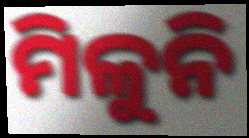
ମିଳୁନି